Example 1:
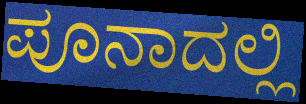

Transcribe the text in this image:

ಪೂನಾದಲ್ಲಿ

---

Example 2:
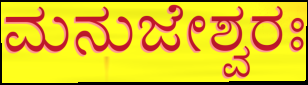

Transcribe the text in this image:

ಮನುಜೇಶ್ವರಃ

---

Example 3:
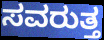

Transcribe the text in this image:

ಸವರುತ್ತ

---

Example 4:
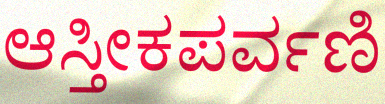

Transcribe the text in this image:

ಆಸ್ತೀಕಪರ್ವಣಿ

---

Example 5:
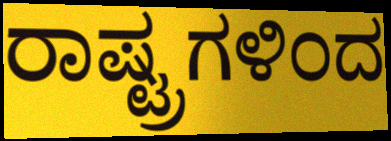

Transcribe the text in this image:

ರಾಷ್ಟ್ರಗಳಿಂದ